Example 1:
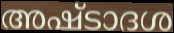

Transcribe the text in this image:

അഷ്ടാദശ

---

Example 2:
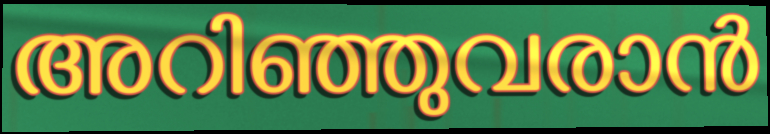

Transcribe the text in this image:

അറിഞ്ഞുവരാൻ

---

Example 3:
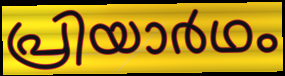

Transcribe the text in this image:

പ്രിയാർഥം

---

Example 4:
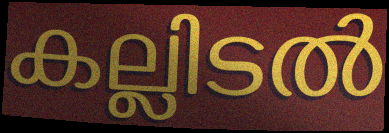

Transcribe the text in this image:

കല്ലിടൽ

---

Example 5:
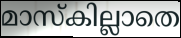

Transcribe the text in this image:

മാസ്കില്ലാതെ